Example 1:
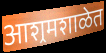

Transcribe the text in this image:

आश्रमशाळेत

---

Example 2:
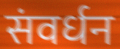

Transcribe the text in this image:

संवर्धन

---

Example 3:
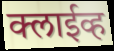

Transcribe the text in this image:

क्लाईव्ह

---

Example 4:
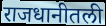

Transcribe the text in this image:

राजधानीतली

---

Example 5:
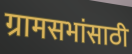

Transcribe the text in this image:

ग्रामसभांसाठी